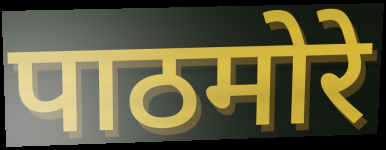
पाठमोरे